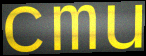
cmu